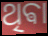
ଥିଵା